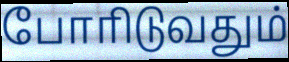
போரிடுவதும்